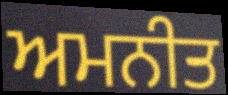
ਅਮਨੀਤ